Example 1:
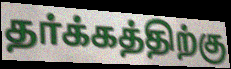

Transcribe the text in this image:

தர்க்கத்திற்கு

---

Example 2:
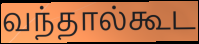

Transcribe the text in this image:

வந்தால்கூட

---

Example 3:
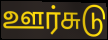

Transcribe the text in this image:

ஊர்சுடு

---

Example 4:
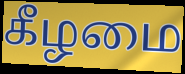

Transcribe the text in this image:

கீழமை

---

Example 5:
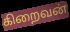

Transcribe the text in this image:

கிறைவன்